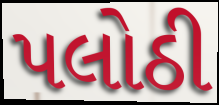
પલોઠી